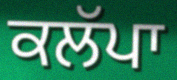
ਕਲੱਪਾ